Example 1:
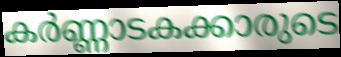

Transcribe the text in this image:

കർണ്ണാടകക്കാരുടെ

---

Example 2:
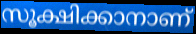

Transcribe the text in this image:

സൂക്ഷിക്കാനാണ്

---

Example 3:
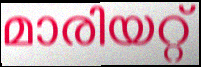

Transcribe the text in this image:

മാരിയറ്റ്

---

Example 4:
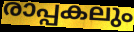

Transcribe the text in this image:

രാപ്പകലും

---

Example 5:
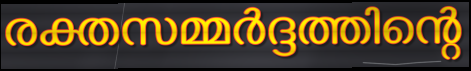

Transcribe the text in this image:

രക്തസമ്മർദ്ദത്തിന്റെ